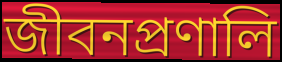
জীবনপ্রণালি